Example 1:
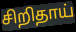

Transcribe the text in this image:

சிறிதாய்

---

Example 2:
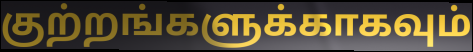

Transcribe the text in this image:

குற்றங்களுக்காகவும்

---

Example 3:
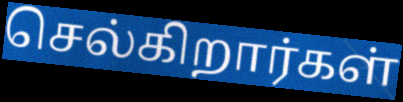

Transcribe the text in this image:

செல்கிறார்கள்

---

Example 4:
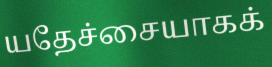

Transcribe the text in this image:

யதேச்சையாகக்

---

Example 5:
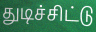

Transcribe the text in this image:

துடிச்சிட்டு